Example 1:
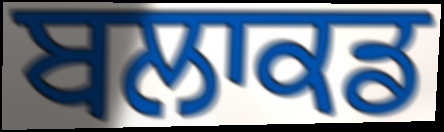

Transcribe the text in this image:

ਬਲਾਕਡ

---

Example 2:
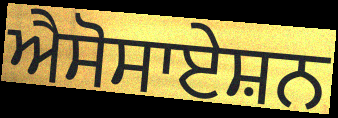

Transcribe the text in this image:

ਐਸੋਸਾਏਸ਼ਨ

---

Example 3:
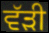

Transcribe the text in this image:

ਵੱੜੀ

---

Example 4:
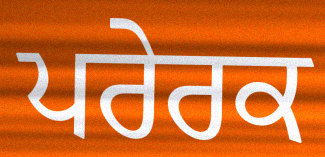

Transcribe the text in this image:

ਪਰੇਰਕ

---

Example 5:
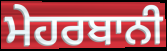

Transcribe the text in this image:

ਮੇਹਰਬਾਨੀ